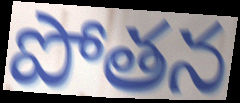
పోతన